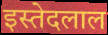
इस्तेदलाल